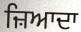
ਜ਼ਿਆਦਾ